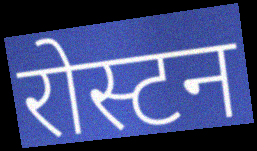
रोस्टन